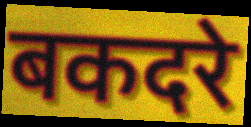
बकदरे